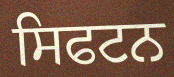
ਸਿਫਟਨ